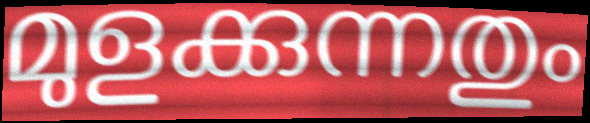
മുളക്കുന്നതും